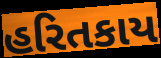
હરિતકાય